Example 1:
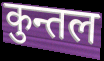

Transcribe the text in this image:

कुन्तल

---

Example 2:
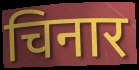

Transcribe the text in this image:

चिनार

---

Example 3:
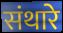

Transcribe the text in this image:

संथारे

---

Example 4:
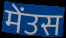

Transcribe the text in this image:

मेंउस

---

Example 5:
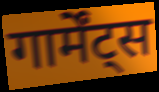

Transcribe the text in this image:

गार्मेंट्स